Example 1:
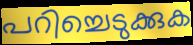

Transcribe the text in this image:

പറിച്ചെടുക്കുക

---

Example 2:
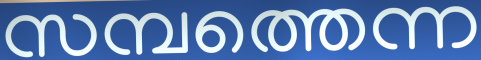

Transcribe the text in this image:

സമ്പത്തെന്ന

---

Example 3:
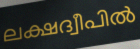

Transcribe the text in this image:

ലക്ഷദ്വീപിൽ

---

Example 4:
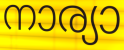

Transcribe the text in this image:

നാര്യാ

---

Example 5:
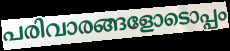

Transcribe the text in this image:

പരിവാരങ്ങളോടൊപ്പം